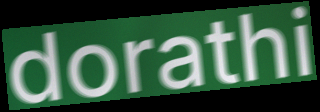
dorathi